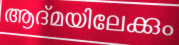
ആദ്മയിലേക്കും